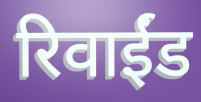
रिवाईंड